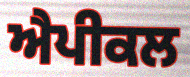
ਐਪੀਕਲ